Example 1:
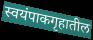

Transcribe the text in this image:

स्वयंपाकगृहातील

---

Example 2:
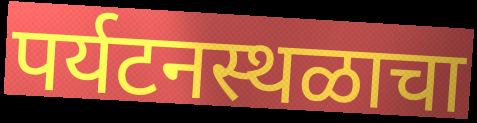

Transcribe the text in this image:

पर्यटनस्थळाचा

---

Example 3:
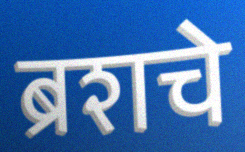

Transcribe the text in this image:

ब्रशचे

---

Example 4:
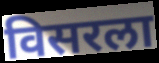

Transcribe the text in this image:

विसरला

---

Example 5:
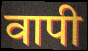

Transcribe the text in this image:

वापी